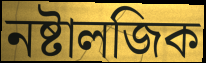
নষ্টালজিক